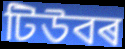
টিউবৰ